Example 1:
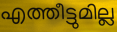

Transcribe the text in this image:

എത്തീട്ടുമില്ല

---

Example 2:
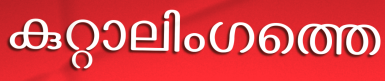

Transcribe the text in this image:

കുറ്റാലിംഗത്തെ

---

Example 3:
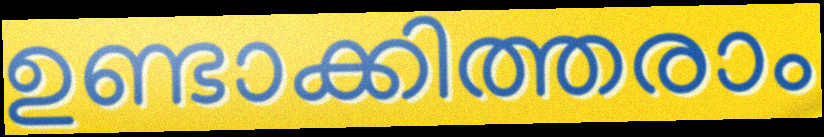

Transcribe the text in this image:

ഉണ്ടാക്കിത്തരാം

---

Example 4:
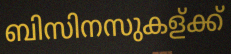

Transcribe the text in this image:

ബിസിനസുകള്ക്ക്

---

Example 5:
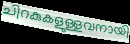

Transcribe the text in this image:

ചിറകുകളുള്ളവനായി